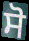
ਸੋ